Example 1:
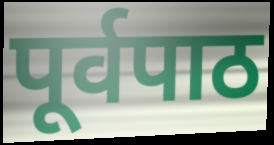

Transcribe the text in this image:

पूर्वपाठ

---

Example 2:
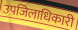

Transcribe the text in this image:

उपजिलाधिकारी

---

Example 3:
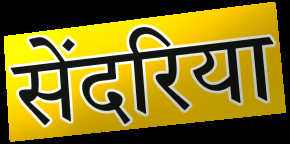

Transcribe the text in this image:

सेंदरिया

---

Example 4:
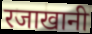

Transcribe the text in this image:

रजाखानी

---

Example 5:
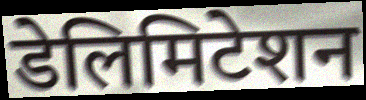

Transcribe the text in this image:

डेलिमिटेशन